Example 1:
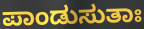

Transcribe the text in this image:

ಪಾಂಡುಸುತಾಃ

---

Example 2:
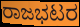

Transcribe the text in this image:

ರಾಜಭಟರ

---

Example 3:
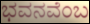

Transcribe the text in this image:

ಭವನವೆಂಬ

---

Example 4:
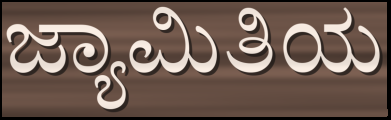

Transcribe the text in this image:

ಜ್ಯಾಮಿತಿಯ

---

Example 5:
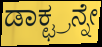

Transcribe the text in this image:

ಡಾಕ್ಟ್ರನ್ನೇ